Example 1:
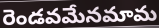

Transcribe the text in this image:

రెండవమేనమామ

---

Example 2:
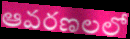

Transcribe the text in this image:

ఆవరణలలో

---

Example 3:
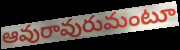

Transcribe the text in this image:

ఆవురావురుమంటూ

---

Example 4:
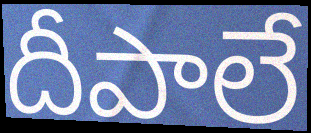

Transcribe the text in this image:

దీపాలే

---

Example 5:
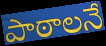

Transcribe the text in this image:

పాఠాలనే